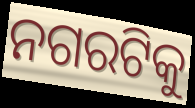
ନଗରଟିକୁ